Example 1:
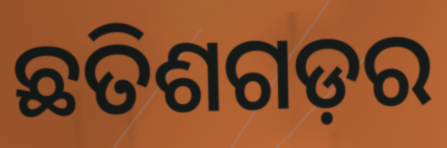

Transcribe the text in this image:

ଛତିଶଗଡ଼ର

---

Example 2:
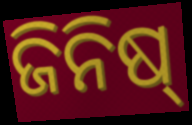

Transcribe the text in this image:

ଜିନିଷ୍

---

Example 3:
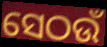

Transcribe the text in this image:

ସେଠଉଁ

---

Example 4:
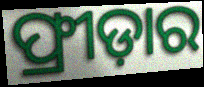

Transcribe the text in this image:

ଫ୍ରୀଡ଼ାର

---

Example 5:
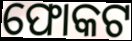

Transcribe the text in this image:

ଫୋକଟ